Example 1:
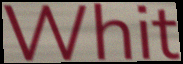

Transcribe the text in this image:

Whit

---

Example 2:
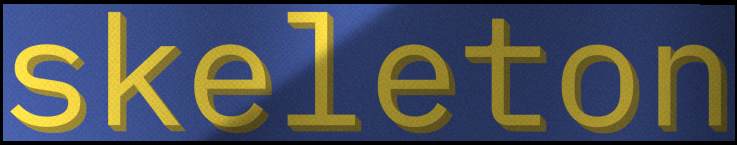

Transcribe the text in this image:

skeleton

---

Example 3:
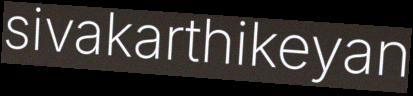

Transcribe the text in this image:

sivakarthikeyan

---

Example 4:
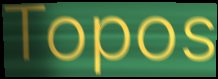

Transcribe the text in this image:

Topos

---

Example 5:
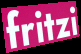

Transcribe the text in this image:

fritzi